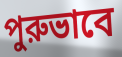
পুরুভাবে